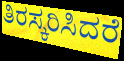
ತಿರಸ್ಕರಿಸಿದರೆ